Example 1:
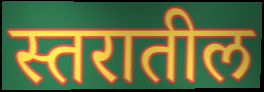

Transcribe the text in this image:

स्तरातील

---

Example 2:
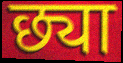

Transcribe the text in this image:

छ्या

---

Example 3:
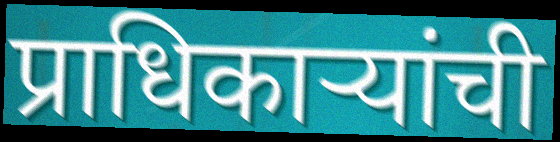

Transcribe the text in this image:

प्राधिकाऱ्यांची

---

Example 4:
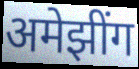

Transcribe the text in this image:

अमेझींग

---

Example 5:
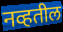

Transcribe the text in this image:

नव्हतील